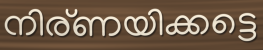
നിര്ണയിക്കട്ടെ